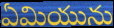
ఏమియును